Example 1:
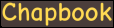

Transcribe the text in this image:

Chapbook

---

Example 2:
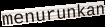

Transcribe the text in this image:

menurunkan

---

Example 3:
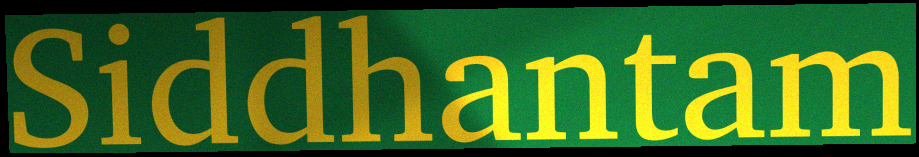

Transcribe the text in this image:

Siddhantam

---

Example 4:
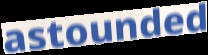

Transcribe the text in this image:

astounded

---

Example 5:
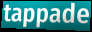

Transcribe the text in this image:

tappade